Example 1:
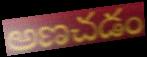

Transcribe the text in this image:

అణచడం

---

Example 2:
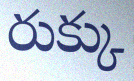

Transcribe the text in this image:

రుక్కు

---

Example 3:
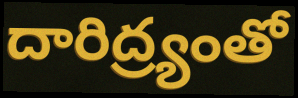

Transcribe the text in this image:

దారిద్ర్యంతో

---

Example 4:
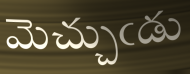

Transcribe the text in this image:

మెచ్చుఁడు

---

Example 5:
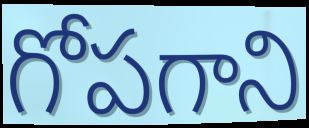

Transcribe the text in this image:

గోపగాని